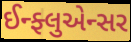
ઈન્ફ્લુએન્સર